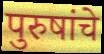
पुरुषांचे